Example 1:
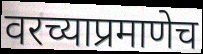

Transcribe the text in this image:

वरच्याप्रमाणेच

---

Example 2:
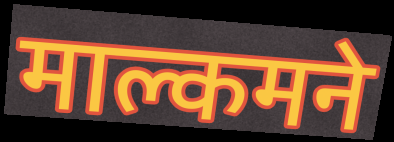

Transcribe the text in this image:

माल्कमने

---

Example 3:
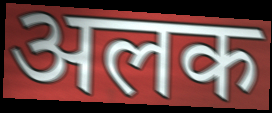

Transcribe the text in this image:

अलक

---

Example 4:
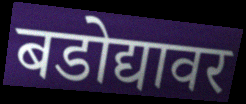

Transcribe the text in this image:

बडोद्यावर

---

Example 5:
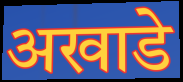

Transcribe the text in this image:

अखाडे